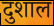
दुशाल